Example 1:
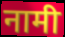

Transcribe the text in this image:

नामी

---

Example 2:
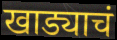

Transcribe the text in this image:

खाड्याचं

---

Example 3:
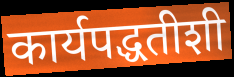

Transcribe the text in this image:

कार्यपद्धतीशी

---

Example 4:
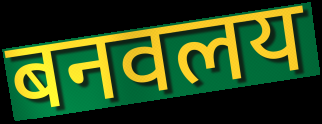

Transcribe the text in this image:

बनवलय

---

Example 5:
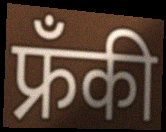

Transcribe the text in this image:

फ्रँकी